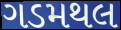
ગડમથલ